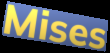
Mises